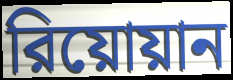
রিয়োয়ান